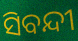
ସିବନ୍ଦୀ